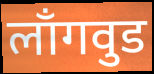
लाँगवुड